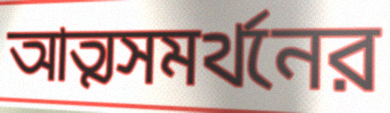
আত্মসমর্থনের